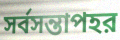
সর্বসন্তাপহর